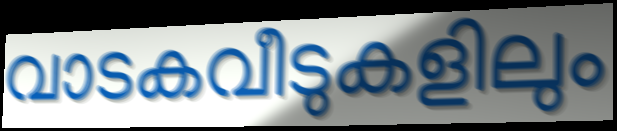
വാടകവീടുകളിലും